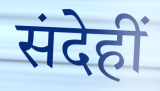
संदेहीं